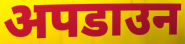
अपडाउन